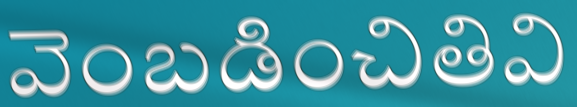
వెంబడించితివి